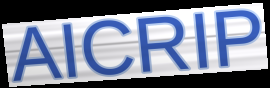
AICRIP